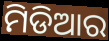
ମିଡିଆର